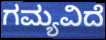
ಗಮ್ಯವಿದೆ